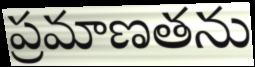
ప్రమాణతను